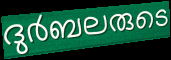
ദുർബലരുടെ